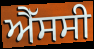
ਐੱਸਸੀ